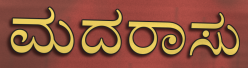
ಮದರಾಸು